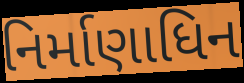
નિર્માણાધિન